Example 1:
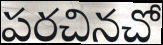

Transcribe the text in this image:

పరచినచో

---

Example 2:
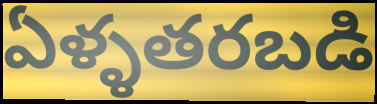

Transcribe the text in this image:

ఏళ్ళతరబడి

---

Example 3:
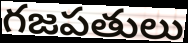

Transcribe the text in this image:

గజపతులు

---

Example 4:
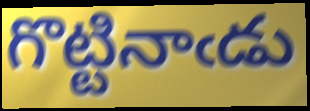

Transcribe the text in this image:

గొట్టినాఁడు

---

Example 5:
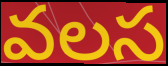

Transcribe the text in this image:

వలస